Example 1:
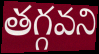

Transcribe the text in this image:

తగ్గవని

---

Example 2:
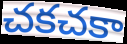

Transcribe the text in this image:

చకచకా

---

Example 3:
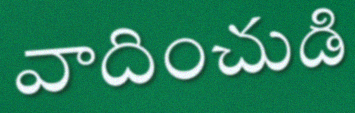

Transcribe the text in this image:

వాదించుడి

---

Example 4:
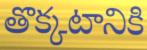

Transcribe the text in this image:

తొక్కటానికి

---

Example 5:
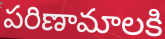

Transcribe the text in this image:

పరిణామాలకి